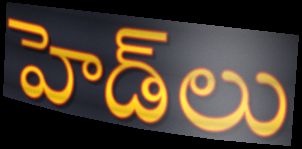
హెడ్‌లు